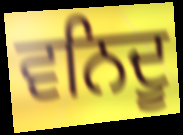
ਵਨਿਦੂ